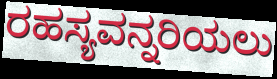
ರಹಸ್ಯವನ್ನರಿಯಲು